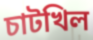
চাটখিল